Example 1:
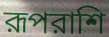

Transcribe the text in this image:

রূপরাশি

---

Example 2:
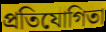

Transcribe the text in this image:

প্রতিযোগিতা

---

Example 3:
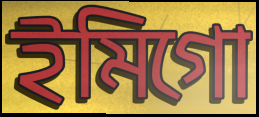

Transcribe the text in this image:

ইমিগো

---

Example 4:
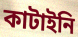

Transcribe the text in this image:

কাটাইনি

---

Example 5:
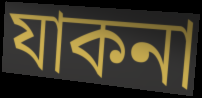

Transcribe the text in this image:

যাকনা